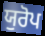
ਯੁਰੋਪ